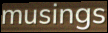
musings